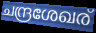
ചന്ദ്രശേഖര്